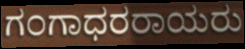
ಗಂಗಾಧರರಾಯರು